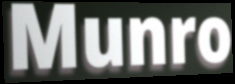
Munro